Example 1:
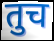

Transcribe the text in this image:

तुच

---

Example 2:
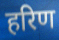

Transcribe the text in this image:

हरिण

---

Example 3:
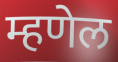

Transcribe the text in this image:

म्हणेल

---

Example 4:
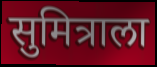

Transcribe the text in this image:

सुमित्राला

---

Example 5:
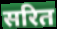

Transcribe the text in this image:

सरित